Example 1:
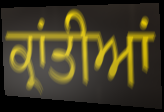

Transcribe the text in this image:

ਕ੍ਰਾਂਤੀਆਂ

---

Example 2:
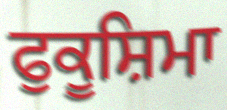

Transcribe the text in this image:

ਫੁਕੂਸ਼ਿਮਾ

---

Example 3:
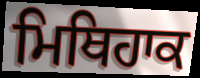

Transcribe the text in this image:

ਮਿਥਿਹਾਕ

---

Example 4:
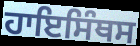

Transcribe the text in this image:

ਹਾਇਸਿੰਥਸ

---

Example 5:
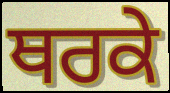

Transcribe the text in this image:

ਥਰਕੇ